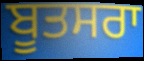
ਬੂਤਸਰਾ